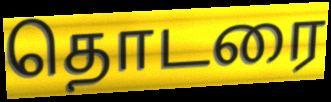
தொடரை